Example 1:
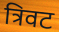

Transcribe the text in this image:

त्रिवट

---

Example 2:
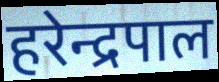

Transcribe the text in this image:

हरेन्द्रपाल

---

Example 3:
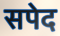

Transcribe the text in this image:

सपेद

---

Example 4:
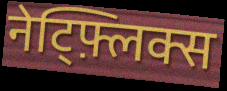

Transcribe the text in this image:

नेट्फ़्लिक्स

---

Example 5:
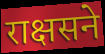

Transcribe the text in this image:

राक्षसने